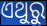
ଏଥୁରୁ